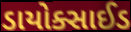
ડાયોક્સાઈડ